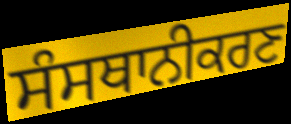
ਸੰਸਥਾਨੀਕਰਣ